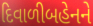
દિવાળીબહેનને